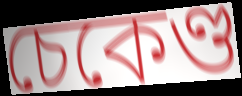
চেকেণ্ড